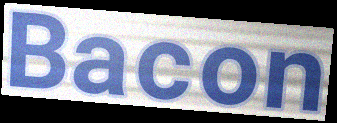
Bacon